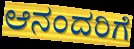
ಆನಂದರಿಗೆ